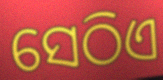
ସେଠିଏ